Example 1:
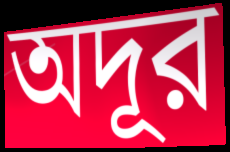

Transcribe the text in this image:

অদূর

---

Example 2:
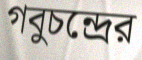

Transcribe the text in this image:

গবুচন্দ্রের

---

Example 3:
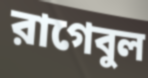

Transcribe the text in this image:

রাগেবুল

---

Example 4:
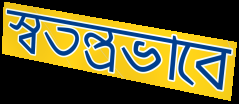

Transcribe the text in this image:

স্বতন্ত্রভাবে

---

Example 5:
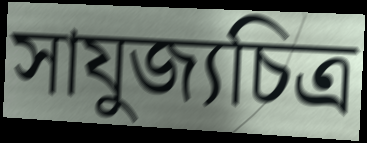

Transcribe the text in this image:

সাযুজ্যচিত্র